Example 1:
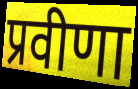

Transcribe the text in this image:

प्रवीणा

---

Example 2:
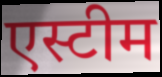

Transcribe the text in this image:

एस्टीम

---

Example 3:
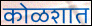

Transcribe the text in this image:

कोळशात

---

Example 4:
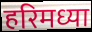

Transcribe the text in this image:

हरिमध्या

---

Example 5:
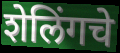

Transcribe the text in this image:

शेलिंगचे